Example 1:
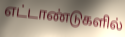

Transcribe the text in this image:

எட்டாண்டுகளில்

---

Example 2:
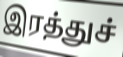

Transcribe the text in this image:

இரத்துச்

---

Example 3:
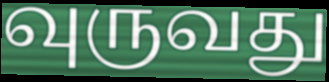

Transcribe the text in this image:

வுருவது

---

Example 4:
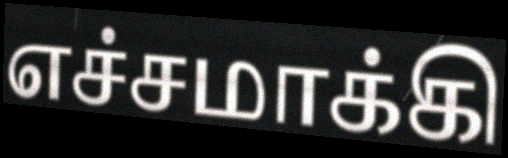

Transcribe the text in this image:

எச்சமாக்கி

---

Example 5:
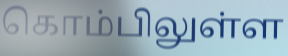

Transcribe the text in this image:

கொம்பிலுள்ள